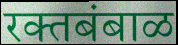
रक्‍तबंबाळ